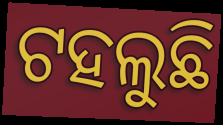
ଟହଲୁଛି